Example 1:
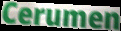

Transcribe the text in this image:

Cerumen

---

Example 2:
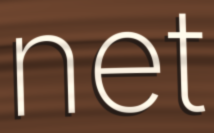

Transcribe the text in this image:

net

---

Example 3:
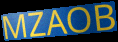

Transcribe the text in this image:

MZAOB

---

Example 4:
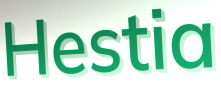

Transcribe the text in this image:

Hestia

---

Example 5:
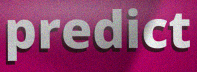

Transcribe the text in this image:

predict